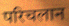
परिचलान